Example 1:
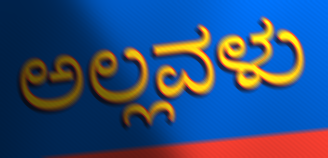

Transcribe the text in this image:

ಅಲ್ಲವಳು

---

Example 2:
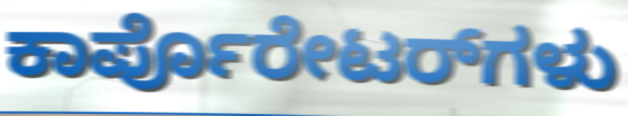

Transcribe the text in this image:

ಕಾರ್ಪೊರೇಟರ್‌ಗಳು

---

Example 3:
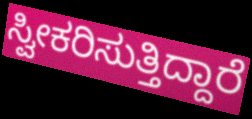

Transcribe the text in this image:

ಸ್ವೀಕರಿಸುತ್ತಿದ್ದಾರೆ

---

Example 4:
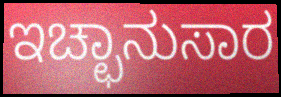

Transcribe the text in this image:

ಇಚ್ಛಾನುಸಾರ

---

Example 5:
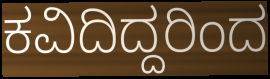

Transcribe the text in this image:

ಕವಿದಿದ್ದರಿಂದ